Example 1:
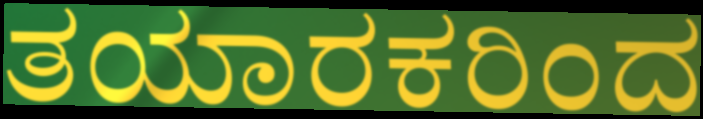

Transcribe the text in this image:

ತಯಾರಕರಿಂದ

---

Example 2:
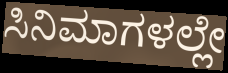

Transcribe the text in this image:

ಸಿನಿಮಾಗಳಲ್ಲೇ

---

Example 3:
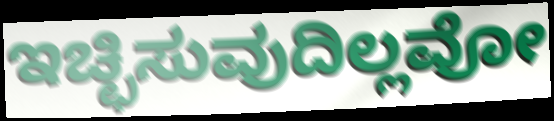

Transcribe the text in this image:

ಇಚ್ಛಿಸುವುದಿಲ್ಲವೋ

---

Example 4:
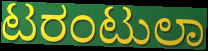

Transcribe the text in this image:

ಟರಂಟುಲಾ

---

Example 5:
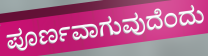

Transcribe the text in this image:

ಪೂರ್ಣವಾಗುವುದೆಂದು